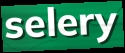
selery